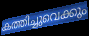
കത്തിച്ചുവെക്കും